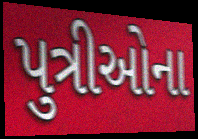
પુત્રીઓના